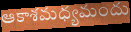
ఆకాశమధ్యమందు